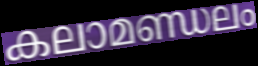
കലാമണ്ഡലം